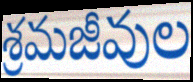
శ్రమజీవుల